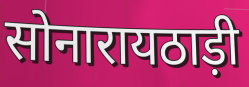
सोनारायठाड़ी